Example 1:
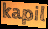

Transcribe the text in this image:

kapil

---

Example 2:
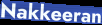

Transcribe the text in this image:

Nakkeeran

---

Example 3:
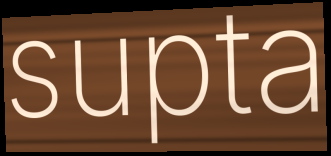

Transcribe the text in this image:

supta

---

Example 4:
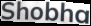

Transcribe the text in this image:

Shobha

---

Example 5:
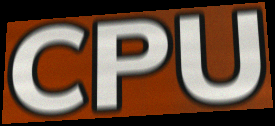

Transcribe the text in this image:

CPU